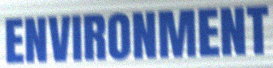
ENVIRONMENT